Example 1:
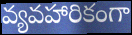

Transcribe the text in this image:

వ్యవహారికంగా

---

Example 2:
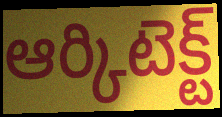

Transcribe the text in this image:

ఆర్కిటెక్ట్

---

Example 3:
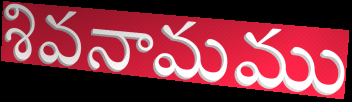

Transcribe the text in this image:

శివనామము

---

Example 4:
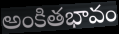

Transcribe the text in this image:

అంకితభావం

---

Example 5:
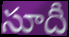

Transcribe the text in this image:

సూదీ